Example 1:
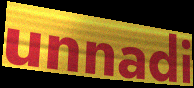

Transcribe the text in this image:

unnadi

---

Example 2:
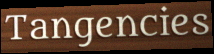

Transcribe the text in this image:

Tangencies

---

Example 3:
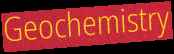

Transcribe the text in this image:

Geochemistry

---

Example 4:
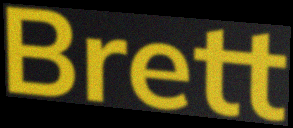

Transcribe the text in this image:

Brett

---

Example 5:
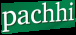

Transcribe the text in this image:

pachhi